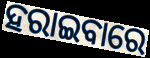
ହରାଇବାରେ